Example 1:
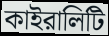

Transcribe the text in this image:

কাইরালিটি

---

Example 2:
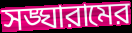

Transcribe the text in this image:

সঙ্ঘারামের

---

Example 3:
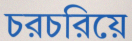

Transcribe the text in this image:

চরচরিয়ে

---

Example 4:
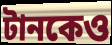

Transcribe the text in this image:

টানকেও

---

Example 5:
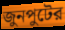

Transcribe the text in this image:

জুনপুটের